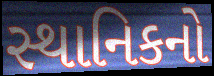
સ્થાનિકનો